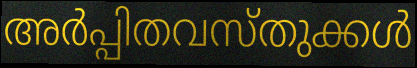
അർപ്പിതവസ്തുക്കൾ